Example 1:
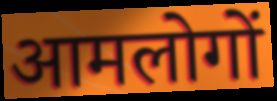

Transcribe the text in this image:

आमलोगों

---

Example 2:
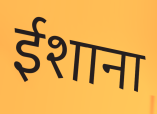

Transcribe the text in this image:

ईशाना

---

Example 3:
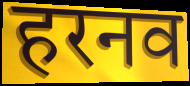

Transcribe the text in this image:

हरनव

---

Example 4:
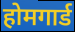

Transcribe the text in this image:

होमगार्ड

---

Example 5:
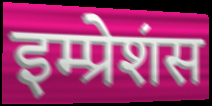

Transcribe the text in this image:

इम्प्रेशंस